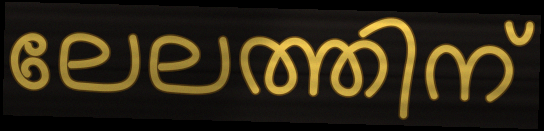
ലേലത്തിന്